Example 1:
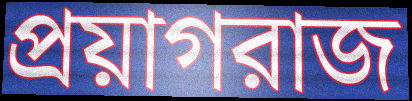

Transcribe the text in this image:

প্রয়াগরাজ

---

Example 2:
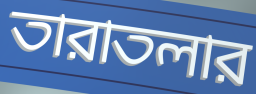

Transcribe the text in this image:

তারাতলার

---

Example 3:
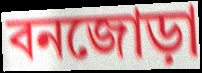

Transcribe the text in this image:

বনজোড়া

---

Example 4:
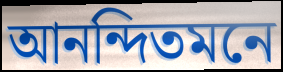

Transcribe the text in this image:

আনন্দিতমনে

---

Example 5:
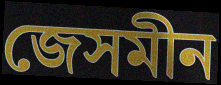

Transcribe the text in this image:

জেসমীন